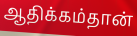
ஆதிக்கம்தான்